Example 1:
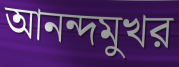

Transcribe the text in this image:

আনন্দমুখর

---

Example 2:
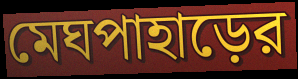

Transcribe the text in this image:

মেঘপাহাড়ের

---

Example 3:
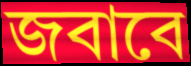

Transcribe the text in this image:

জবাবে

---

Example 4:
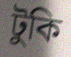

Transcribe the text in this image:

টুকি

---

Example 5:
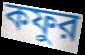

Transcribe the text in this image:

কফুর